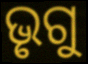
ଭୃଗୁ